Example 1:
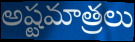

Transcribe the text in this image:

అష్టమాత్రలు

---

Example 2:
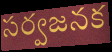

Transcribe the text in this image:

సర్వజనక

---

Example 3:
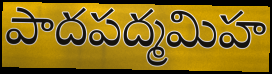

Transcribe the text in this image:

పాదపద్మమిహ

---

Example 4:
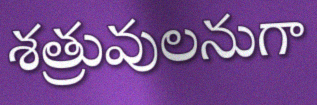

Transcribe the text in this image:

శత్రువులనుగా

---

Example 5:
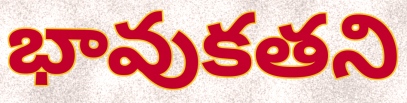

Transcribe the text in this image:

భావుకతని